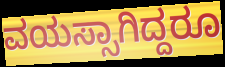
ವಯಸ್ಸಾಗಿದ್ದರೂ